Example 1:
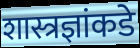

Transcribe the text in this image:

शास्त्रज्ञांकडे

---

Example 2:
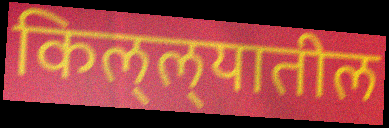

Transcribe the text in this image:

किल्ल्यातील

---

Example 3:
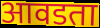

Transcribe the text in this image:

आवडता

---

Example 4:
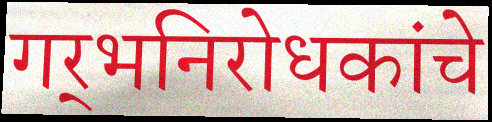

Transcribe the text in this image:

गर्भनिरोधकांचे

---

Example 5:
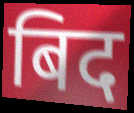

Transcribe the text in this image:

बिद